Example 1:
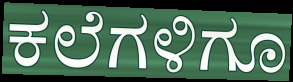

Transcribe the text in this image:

ಕಲೆಗಳಿಗೂ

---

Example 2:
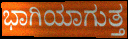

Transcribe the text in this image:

ಭಾಗಿಯಾಗುತ್ತ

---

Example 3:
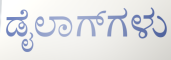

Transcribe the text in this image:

ಡೈಲಾಗ್‌ಗಳು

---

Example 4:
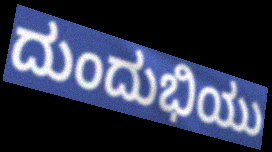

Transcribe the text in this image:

ದುಂದುಭಿಯು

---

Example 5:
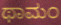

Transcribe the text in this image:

ಥಾಮಂ